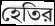
হেতির